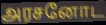
அரசனோட